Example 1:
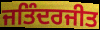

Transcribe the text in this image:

ਜਤਿੰਦਰਜੀਤ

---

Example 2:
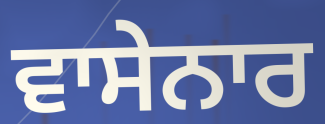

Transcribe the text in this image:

ਵਾਸੇਨਾਰ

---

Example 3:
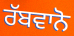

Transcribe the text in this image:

ਰੱਬਵਾਨੋ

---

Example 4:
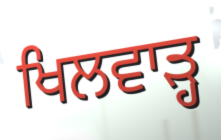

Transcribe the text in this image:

ਖਿਲਵਾੜ੍ਹ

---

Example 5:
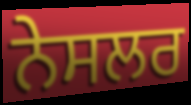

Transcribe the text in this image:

ਨੇਸਲਰ